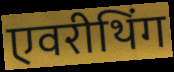
एवरीथिंग